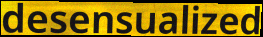
desensualized